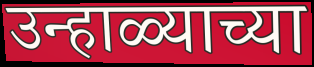
उन्हाळ्याच्या